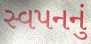
સ્વપનનું